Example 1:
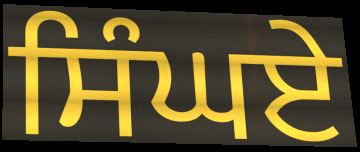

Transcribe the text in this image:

ਸਿੰਘਏ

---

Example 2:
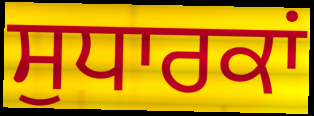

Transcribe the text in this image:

ਸੁਧਾਰਕਾਂ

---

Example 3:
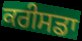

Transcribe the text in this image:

ਕਰੀਸਡਾ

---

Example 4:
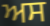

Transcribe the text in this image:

ਅਸ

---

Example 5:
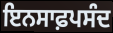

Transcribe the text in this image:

ਇਨਸਾਫ਼ਪਸੰਦ